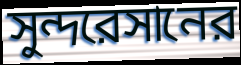
সুন্দরেসানের